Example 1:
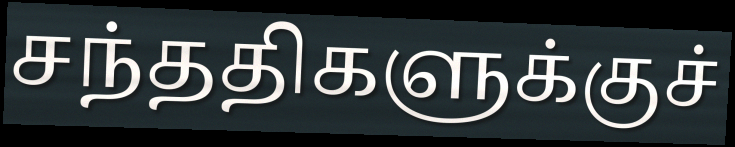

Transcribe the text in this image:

சந்ததிகளுக்குச்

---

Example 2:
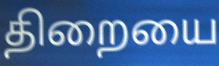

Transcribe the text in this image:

திறையை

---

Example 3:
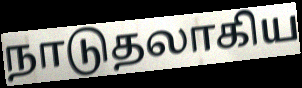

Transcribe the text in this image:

நாடுதலாகிய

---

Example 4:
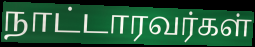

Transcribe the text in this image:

நாட்டாரவர்கள்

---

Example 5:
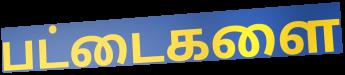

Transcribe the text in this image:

பட்டைகளை